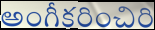
అంగీకరించిరి